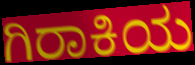
ಗಿರಾಕಿಯ